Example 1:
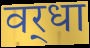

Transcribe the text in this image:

वर्धा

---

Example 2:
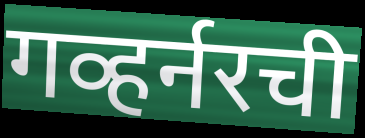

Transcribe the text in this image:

गव्हर्नरची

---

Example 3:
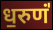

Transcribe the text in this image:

ध॒रुणं॑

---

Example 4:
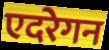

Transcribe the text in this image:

एदरेगन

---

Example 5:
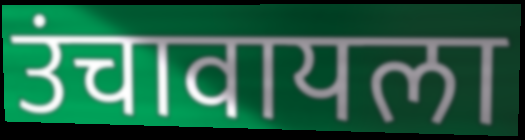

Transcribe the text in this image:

उंचावायला